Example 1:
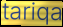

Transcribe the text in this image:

tariqa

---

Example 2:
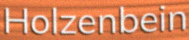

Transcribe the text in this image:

Holzenbein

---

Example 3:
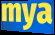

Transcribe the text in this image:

mya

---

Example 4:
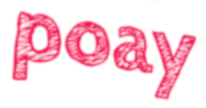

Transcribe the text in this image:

poay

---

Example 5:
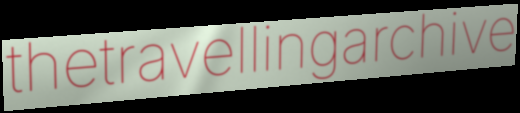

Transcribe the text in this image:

thetravellingarchive